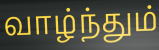
வாழ்ந்தும்